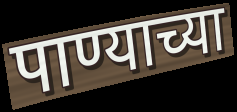
पाण्याच्या